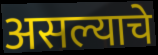
असल्‍याचे